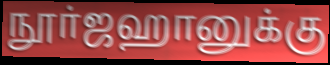
நூர்ஜஹானுக்கு